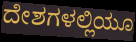
ದೇಶಗಳಲ್ಲಿಯೂ